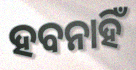
ହବନାହିଁ